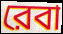
রেবা